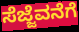
ಸೆಜ್ಜೆವನೆಗೆ